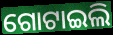
ଗୋଟାଇଲି